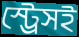
স্ট্রেসই